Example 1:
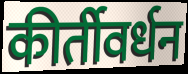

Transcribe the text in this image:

कीर्तीवर्धन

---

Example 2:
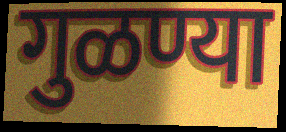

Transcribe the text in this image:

गुळण्या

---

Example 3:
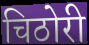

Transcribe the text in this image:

चिठोरी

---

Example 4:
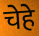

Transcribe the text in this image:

चेहे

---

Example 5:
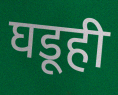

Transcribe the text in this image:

घडूही